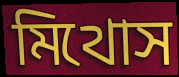
মিথোস